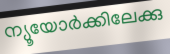
ന്യൂയോർക്കിലേക്കു